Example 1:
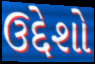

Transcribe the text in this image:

ઉદ્દેશો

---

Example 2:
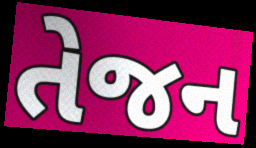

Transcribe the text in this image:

તેજન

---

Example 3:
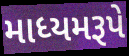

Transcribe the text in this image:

માધ્યમરૂપે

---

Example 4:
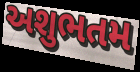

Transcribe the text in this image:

અશુભતમ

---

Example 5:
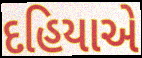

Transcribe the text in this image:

દહિયાએ